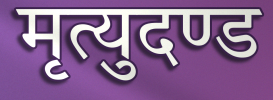
मृत्युदण्ड